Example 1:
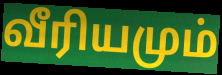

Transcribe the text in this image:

வீரியமும்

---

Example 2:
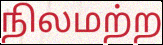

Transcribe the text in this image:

நிலமற்ற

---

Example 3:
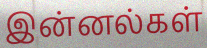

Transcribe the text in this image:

இன்னல்கள்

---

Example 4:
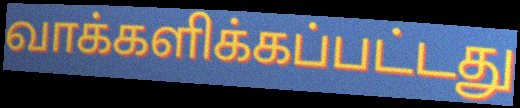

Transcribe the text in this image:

வாக்களிக்கப்பட்டது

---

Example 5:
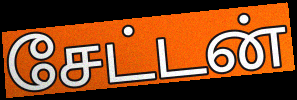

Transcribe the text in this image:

சேட்டன்